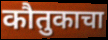
कौतुकाचा